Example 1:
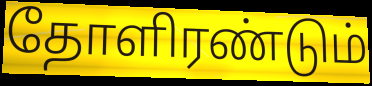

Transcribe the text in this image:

தோளிரண்டும்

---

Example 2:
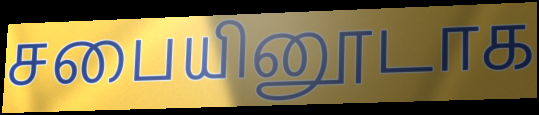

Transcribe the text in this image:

சபையினூடாக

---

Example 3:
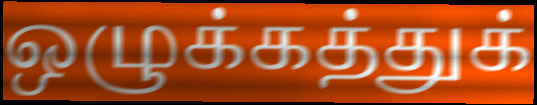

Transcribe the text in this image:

ஒழுக்கத்துக்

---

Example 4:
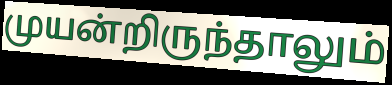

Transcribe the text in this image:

முயன்றிருந்தாலும்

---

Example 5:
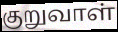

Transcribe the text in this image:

குறுவாள்